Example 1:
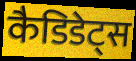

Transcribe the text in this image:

कैडिडेट्स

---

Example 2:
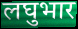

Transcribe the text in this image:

लघुभार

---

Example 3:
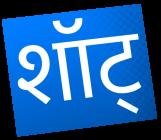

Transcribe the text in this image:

शॉट्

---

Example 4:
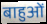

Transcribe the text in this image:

बाहुओं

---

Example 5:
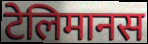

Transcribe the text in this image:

टेलिमानस